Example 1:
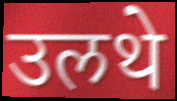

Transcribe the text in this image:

उलथे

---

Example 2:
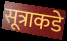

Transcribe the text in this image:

सूत्राकडे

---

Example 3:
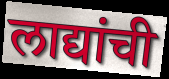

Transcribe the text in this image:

लाद्यांची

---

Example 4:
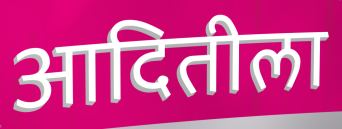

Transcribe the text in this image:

आदितीला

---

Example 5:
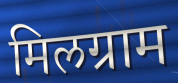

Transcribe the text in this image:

मिलग्राम